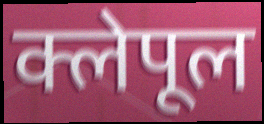
क्लेपूल